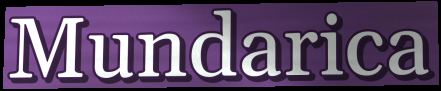
Mundarica